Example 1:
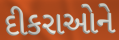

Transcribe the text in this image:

દીકરાઓને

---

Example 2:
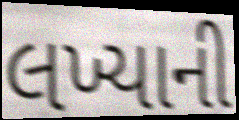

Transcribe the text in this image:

લખ્યાની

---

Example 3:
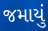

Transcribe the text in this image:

જમાયું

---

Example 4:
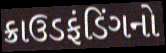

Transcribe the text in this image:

ક્રાઉડફંડિંગનો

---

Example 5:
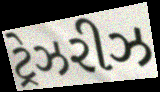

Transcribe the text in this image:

ટ્રેઝરીઝ